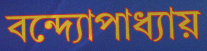
বন্দ্যোপাধ্য়ায়